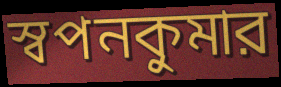
স্বপনকুমার